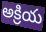
అక్రియ